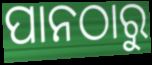
ପାନଠାରୁ